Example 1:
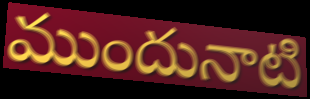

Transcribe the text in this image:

ముందునాటి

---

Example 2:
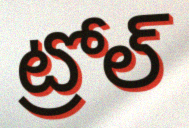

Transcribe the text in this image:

ట్రోల్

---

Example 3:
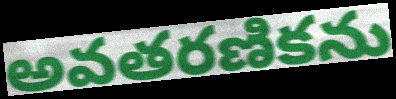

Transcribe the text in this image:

అవతరణికను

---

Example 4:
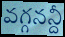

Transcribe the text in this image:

వగ్గనన్దీ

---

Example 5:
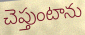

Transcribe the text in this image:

చెప్తుంటాను